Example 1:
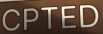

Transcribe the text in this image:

CPTED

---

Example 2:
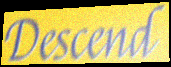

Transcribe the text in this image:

Descend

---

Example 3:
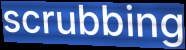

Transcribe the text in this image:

scrubbing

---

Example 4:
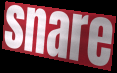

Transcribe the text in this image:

snare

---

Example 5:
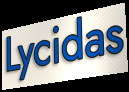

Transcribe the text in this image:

Lycidas